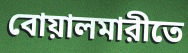
বোয়ালমারীতে